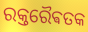
ରକ୍ତରୈଵତକ